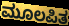
ಮೂಲಪಿತ